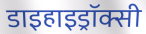
डाइहाइड्रॉक्सी